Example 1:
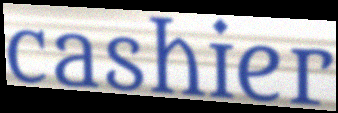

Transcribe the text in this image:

cashier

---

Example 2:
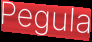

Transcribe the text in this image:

Pegula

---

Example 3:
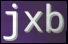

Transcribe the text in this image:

jxb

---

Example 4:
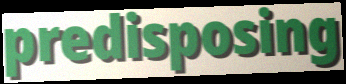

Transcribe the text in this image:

predisposing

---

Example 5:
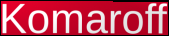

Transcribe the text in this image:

Komaroff